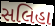
સલિહા